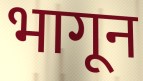
भागून